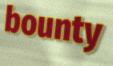
bounty